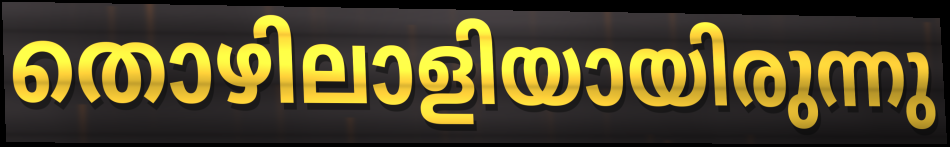
തൊഴിലാളിയായിരുന്നു